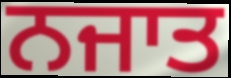
ਨਜਾਤ